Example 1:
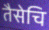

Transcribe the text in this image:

तैसेचि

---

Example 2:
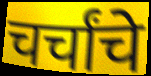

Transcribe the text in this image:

चर्चांचे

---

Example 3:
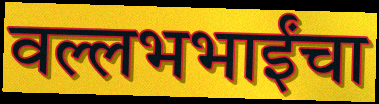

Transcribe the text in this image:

वल्लभभाईंचा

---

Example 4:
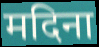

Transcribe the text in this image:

मदिना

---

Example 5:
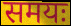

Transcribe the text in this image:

समयः